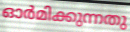
ഓർമിക്കുന്നതു